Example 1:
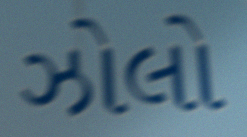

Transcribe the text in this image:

ઝોલો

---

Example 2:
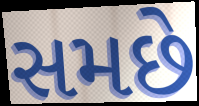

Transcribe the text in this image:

સમછે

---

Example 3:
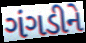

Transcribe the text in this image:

ગંગડીને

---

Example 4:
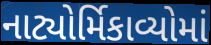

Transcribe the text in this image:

નાટ્યોર્મિકાવ્યોમાં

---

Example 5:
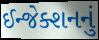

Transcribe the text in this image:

ઈન્જેક્શનનું